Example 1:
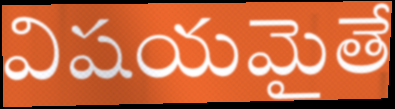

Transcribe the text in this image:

విషయమైతే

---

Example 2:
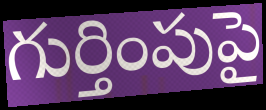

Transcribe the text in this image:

గుర్తింపుపై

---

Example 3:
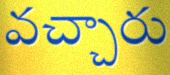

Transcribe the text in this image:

వచ్చారు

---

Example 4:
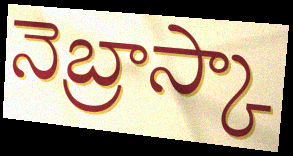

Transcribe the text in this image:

నెబ్రాస్కా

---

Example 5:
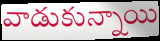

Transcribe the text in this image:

వాడుకున్నాయి